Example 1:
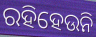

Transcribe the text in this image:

ରହିହେଉନି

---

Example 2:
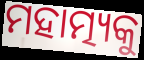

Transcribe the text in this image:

ମହାତ୍ମ୍ୟକୁ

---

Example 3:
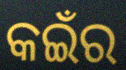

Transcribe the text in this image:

କଇଁର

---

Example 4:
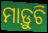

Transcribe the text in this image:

ମାଡ଼ୁଚି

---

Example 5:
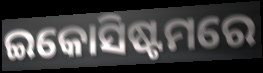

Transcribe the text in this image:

ଇକୋସିଷ୍ଟମରେ